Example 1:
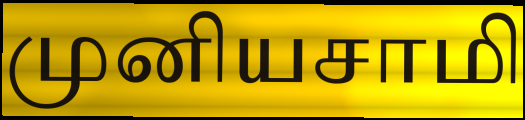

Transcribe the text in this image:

முனியசாமி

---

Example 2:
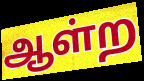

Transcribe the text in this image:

ஆள்ற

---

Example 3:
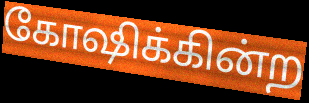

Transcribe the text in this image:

கோஷிக்கின்ற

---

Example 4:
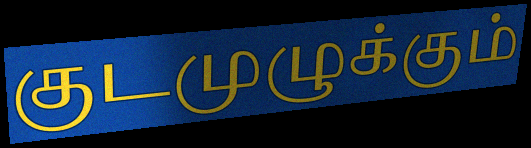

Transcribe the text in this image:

குடமுழுக்கும்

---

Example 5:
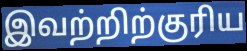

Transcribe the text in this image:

இவற்றிற்குரிய